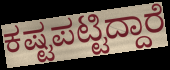
ಕಷ್ಟಪಟ್ಟಿದ್ದಾರೆ